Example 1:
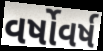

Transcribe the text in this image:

વર્ષોવર્ષ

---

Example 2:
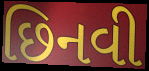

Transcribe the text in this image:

છિનવી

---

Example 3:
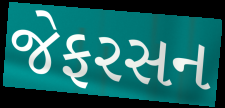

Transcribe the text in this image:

જેફરસન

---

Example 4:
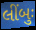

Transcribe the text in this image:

લીંબુઃ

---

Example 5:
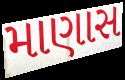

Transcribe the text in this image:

માણાસ